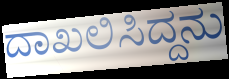
ದಾಖಲಿಸಿದ್ದನು